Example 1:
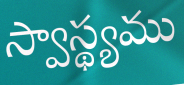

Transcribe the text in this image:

స్వాస్థ్యము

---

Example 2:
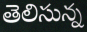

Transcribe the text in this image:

తెలిసున్న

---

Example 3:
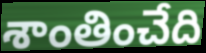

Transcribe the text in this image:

శాంతించేది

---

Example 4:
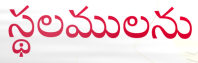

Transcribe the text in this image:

స్థలములను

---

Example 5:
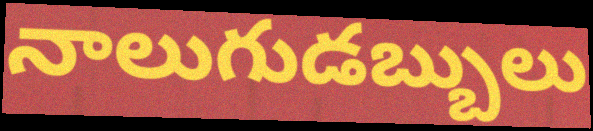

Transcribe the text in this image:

నాలుగుడబ్బులు